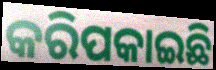
କରିପକାଇଛି